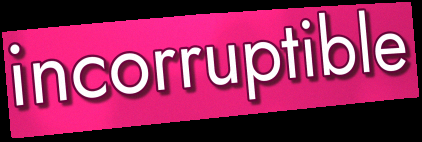
incorruptible